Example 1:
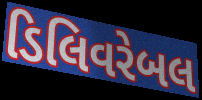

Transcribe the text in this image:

ડિલિવરેબલ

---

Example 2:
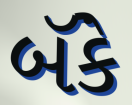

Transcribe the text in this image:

બૅંકે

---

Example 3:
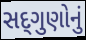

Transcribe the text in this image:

સદ્‌ગુણોનું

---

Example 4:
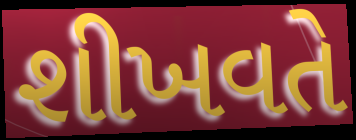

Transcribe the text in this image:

શીખવતે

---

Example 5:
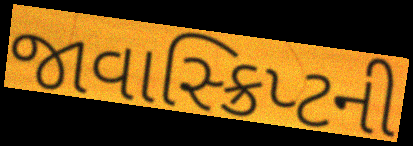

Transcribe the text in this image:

જાવાસ્ક્રિપ્ટની